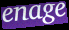
enage